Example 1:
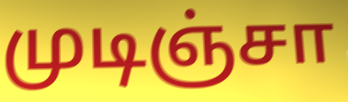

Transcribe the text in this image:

முடிஞ்சா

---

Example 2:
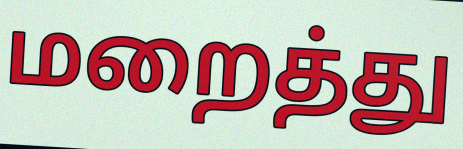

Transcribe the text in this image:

மறைத்து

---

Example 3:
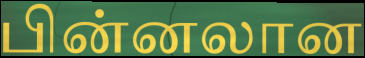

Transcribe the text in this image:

பின்னலான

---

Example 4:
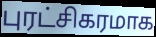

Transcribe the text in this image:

புரட்சிகரமாக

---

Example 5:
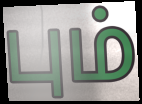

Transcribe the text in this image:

பும்